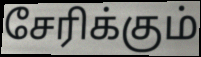
சேரிக்கும்